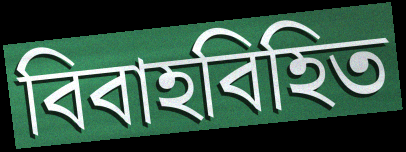
বিবাহবিহিত